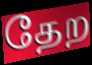
தேற